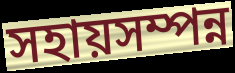
সহায়সম্পন্ন